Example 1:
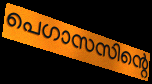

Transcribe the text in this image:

പെഗാസസിന്റെ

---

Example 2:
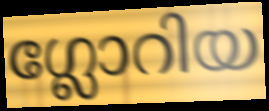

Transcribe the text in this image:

ഗ്ലോറിയ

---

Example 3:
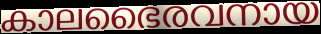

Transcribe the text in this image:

കാലഭൈരവനായ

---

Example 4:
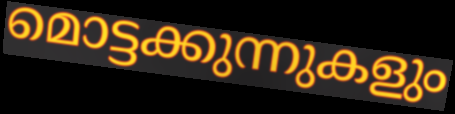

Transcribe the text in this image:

മൊട്ടക്കുന്നുകളും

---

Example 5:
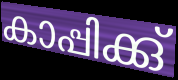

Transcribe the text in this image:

കാപ്പിക്കു്